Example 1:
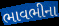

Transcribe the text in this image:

ભાવભીના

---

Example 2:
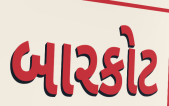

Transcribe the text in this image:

બારકોટ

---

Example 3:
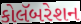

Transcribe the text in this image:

કોલૅબરેશન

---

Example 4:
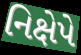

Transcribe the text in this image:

નિક્ષેપે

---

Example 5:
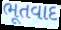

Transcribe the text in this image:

ભૂતવાદ